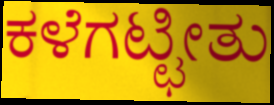
ಕಳೆಗಟ್ಟೀತು